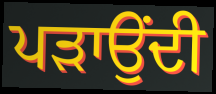
ਪੜਾਉਂਦੀ